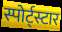
स्पोर्ट्स्टार